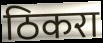
ठिकरा